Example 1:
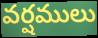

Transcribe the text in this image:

వర్షములు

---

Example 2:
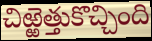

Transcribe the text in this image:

చిఱ్ఱెత్తుకొచ్చింది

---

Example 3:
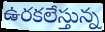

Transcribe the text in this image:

ఉరకలేస్తున్న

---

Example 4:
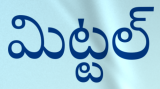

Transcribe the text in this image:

మిట్టల్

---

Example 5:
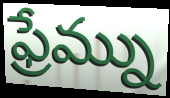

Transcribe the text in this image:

ఫ్రేమ్ను